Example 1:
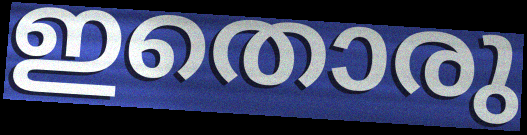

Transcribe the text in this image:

ഇതൊരു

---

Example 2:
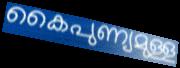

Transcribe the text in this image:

കൈപുണ്യമുള്ള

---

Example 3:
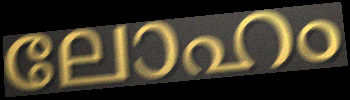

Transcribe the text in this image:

ലോഹം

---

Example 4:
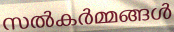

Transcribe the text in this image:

സൽകർമ്മങ്ങൾ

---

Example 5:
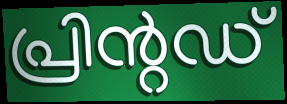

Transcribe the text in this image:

പ്രിന്റഡ്